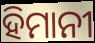
ହିମାନୀ